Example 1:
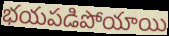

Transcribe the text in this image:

భయపడిపోయాయి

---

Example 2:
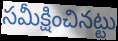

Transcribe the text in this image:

సమీక్షించినట్టు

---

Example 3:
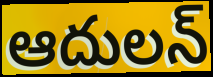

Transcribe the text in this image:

ఆదులన్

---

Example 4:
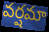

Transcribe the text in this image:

వర్షమా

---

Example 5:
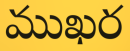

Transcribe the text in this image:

ముఖర